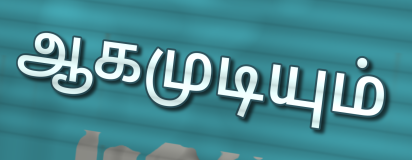
ஆகமுடியும்